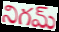
నిగమ్